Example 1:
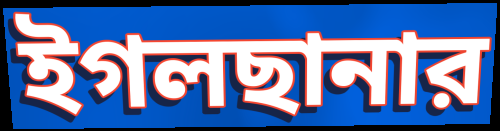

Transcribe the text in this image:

ইগলছানার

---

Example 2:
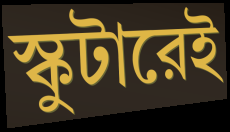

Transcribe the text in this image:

স্কুটারেই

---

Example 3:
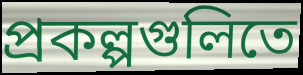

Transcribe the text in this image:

প্রকল্পগুলিতে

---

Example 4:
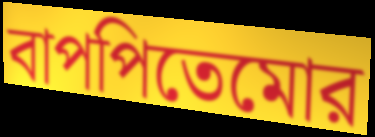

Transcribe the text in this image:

বাপপিতেমোর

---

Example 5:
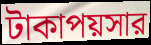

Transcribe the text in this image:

টাকাপয়সার